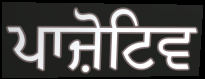
ਪਾਜ਼ੋਟਿਵ